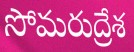
సోమరుద్రేశ